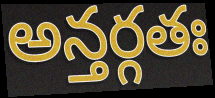
అన్తర్గతః